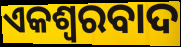
ଏକଶ୍ୱରବାଦ